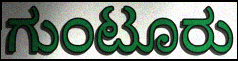
ಗುಂಟೂರು